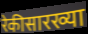
रेकीसारख्या